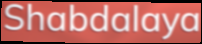
Shabdalaya